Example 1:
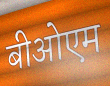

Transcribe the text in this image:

बीओएम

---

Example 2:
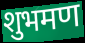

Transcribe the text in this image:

शुभमण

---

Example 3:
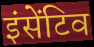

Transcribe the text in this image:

इंसेंटिव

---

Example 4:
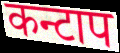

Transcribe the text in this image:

कन्टाप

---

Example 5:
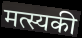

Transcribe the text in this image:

मत्स्यकी